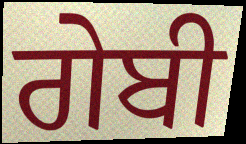
ਗੇਬੀ